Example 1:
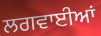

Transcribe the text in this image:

ਲਗਵਾਈਆਂ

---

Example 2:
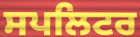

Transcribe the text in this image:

ਸਪਲਿਟਰ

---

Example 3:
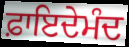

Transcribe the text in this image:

ਫ਼ਾਇਦੇਮੰਦ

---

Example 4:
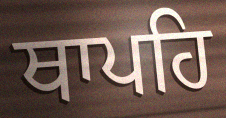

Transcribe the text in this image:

ਥਾਪਹਿ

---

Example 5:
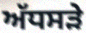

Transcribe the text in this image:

ਅੱਧਸੜੇ